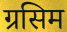
ग्रसिम